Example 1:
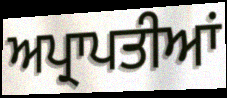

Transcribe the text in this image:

ਅਪ੍ਰਾਪਤੀਆਂ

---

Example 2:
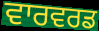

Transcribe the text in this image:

ਵਾਰਵਰਡ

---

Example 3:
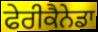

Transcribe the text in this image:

ਫੇਰੀਕੈਨੇਡਾ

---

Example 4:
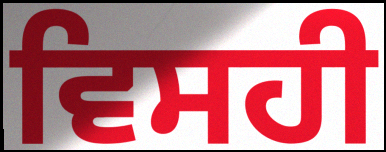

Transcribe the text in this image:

ਵਿਸਹੀ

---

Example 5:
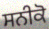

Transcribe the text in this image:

ਸਨੀਕੋ